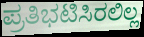
ಪ್ರತಿಭಟಿಸಿರಲಿಲ್ಲ